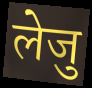
लेजु